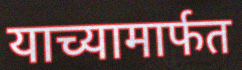
याच्यामार्फत